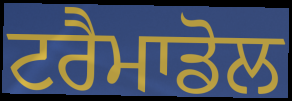
ਟਰੈਮਾਡੋਲ